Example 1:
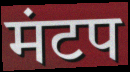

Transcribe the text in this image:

मंटप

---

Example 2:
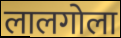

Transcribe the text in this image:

लालगोला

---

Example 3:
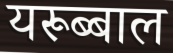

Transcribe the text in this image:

यरूब्बाल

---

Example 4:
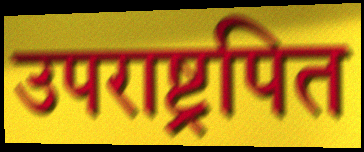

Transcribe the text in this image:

उपराष्ट्रपित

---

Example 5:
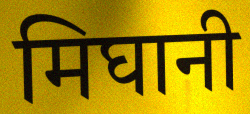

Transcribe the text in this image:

मिघानी